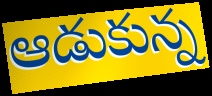
ఆడుకున్న